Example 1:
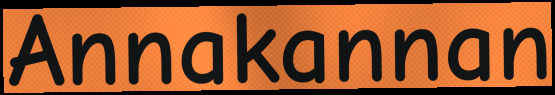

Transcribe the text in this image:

Annakannan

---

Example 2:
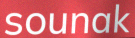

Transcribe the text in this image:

sounak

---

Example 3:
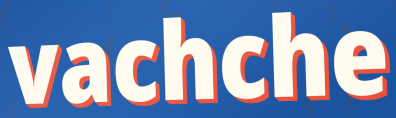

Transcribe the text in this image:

vachche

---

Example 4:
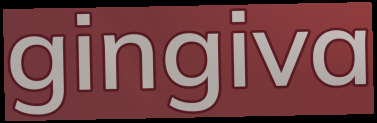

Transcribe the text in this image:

gingiva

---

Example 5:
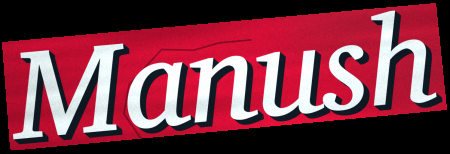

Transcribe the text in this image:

Manush